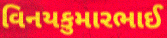
વિનયકુમારભાઈ